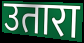
उतारा